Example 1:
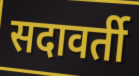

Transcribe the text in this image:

सदावर्ती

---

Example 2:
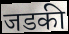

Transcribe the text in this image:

जडकी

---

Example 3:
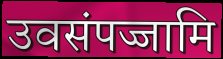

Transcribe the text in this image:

उवसंपज्जामि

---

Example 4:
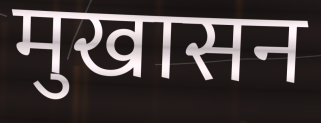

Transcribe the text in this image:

मुखासन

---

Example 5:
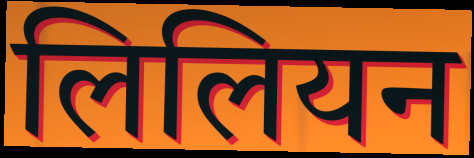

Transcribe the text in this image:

लिलियन